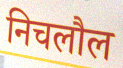
निचलौल